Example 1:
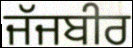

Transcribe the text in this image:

ਜੱਜਬੀਰ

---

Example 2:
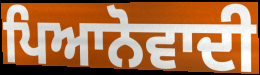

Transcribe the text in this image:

ਪਿਆਨੋਵਾਦੀ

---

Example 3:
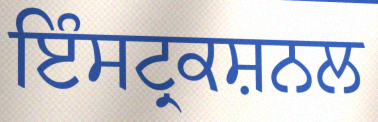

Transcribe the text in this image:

ਇੰਸਟ੍ਰਕਸ਼ਨਲ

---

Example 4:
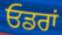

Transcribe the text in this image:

ਓਡਰਾਂ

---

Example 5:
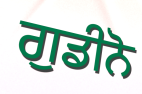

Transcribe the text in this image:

ਗੁਡੀਨੋ